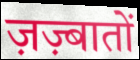
ज़ज़्बातों